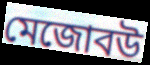
মেজোবউ